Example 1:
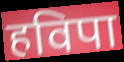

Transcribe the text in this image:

हविपा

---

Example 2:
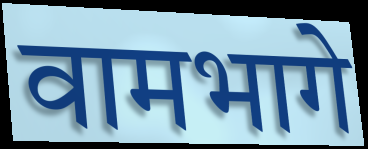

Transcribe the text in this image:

वामभागे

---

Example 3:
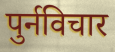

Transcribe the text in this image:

पुर्नविचार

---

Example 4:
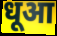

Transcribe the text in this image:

धूआ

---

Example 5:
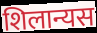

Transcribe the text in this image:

शिलान्यस